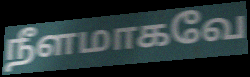
நீளமாகவே